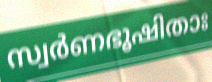
സ്വർണഭൂഷിതാഃ